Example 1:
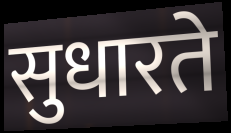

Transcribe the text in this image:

सुधारते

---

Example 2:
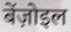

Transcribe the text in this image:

बेंज़ोइल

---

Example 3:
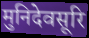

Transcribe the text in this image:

मुनिदेवसूरि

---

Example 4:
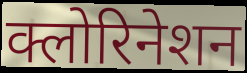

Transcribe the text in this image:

क्लोरिनेशन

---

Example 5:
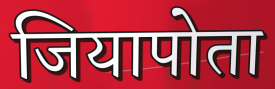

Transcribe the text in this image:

जियापोता